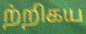
ற்றிகய